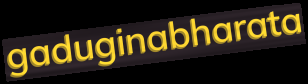
gaduginabharata